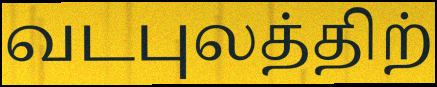
வடபுலத்திற்